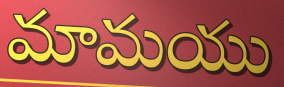
మామయు